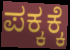
ಪಕ್ಕಕ್ಕೆ